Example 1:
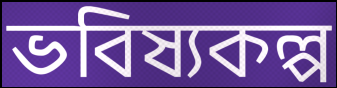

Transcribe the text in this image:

ভবিষ্যকল্প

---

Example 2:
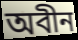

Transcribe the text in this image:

অবীন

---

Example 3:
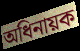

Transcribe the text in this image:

অধিনায়ক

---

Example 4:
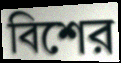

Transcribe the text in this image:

বিশের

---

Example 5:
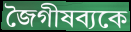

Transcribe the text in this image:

জৈগীষব্যকে